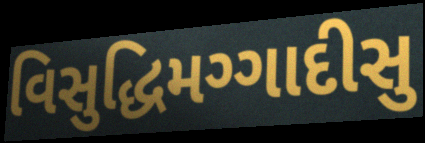
વિસુદ્ધિમગ્ગાદીસુ